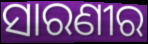
ସାରଣୀର